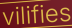
vilifies